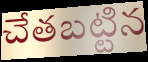
చేతబట్టిన